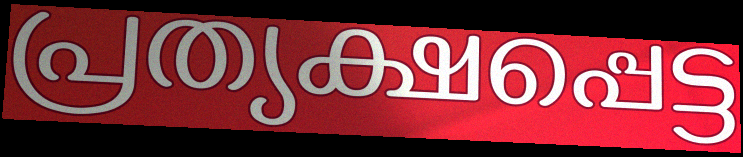
പ്രത്യക്ഷപ്പെട്ട